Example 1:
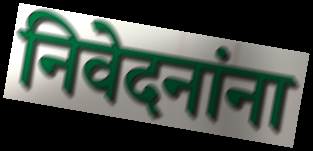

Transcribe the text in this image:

निवेदनांना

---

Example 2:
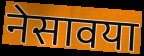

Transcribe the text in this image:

नेसावया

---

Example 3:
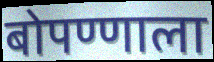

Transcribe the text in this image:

बोपण्णाला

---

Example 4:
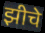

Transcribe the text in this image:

झीचे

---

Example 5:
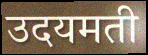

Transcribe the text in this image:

उदयमती